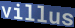
villus